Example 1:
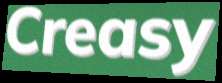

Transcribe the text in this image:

Creasy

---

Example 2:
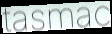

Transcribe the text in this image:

tasmac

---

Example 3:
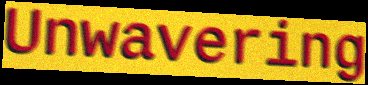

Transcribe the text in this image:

Unwavering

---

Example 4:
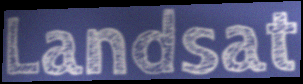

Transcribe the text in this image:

Landsat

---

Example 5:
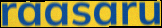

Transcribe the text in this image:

raasaru